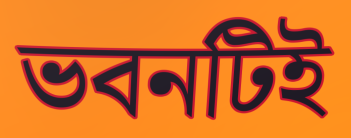
ভবনটিই